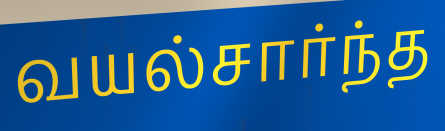
வயல்சார்ந்த